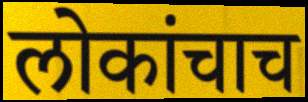
लोकांचाच